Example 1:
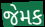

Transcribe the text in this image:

જેમક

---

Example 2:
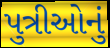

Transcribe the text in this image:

પુત્રીઓનું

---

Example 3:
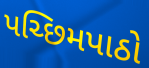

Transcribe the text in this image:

પચ્છિમપાઠો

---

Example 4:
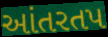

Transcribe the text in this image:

આંતરતપ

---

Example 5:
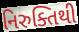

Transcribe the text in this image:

નિરુક્તિથી